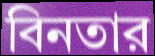
বিনতার